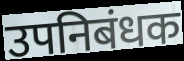
उपनिबंधक